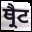
ਥ੍ਰੈਟ